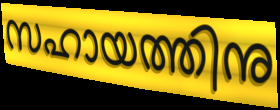
സഹായത്തിനു